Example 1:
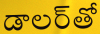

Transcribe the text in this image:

డాలర్‌తో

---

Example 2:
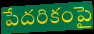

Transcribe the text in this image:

పేదరికంపై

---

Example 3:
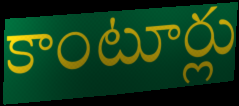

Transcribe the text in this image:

కాంటూర్లు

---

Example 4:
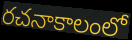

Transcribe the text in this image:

రచనాకాలంలో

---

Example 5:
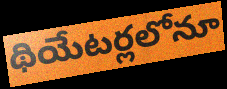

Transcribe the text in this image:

థియేటర్లలోనూ